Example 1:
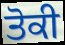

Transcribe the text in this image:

ਤੋਕੀ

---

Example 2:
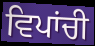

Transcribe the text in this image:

ਵਿਪਾਂਚੀ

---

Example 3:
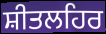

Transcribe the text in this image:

ਸ਼ੀਤਲਹਿਰ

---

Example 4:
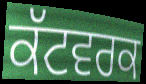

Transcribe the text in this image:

ਕੱਟਵਰਕ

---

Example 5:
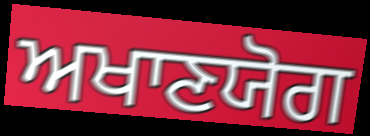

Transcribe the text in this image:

ਅਖਾਣਯੋਗ